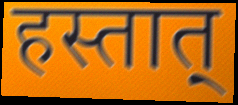
हस्तात्